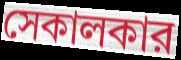
সেকালকার